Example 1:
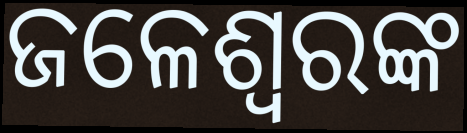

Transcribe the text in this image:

ଜଳେଶ୍ଵରଙ୍କ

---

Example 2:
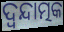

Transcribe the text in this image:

ଦ୍ଵନ୍ଦାତ୍ମକ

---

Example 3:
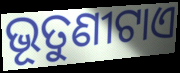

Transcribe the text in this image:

ଭୂତୁଣୀଟାଏ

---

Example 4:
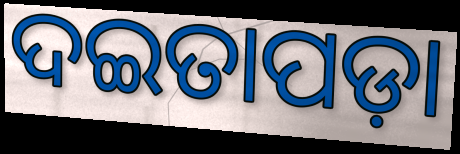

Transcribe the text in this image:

ଦଇତାପଡ଼ା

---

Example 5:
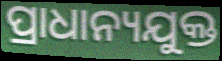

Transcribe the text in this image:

ପ୍ରାଧାନ୍ୟଯୁକ୍ତ